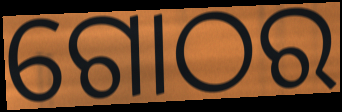
ଗୋଠର